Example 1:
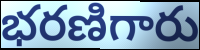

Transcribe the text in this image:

భరణిగారు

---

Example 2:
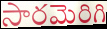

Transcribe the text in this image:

సారమెరిగి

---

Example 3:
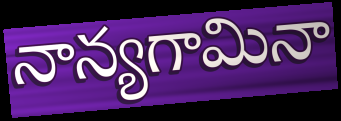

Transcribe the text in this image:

నాన్యగామినా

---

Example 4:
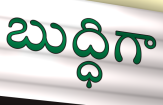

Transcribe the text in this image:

బుద్ధిగా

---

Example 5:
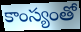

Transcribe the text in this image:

కాంస్యంతో